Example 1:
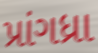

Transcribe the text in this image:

પ્રાંગધ્રા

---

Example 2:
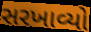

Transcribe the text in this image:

સરખાવ્યો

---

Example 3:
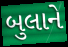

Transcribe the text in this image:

બુલાને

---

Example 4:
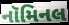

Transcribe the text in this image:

નૉમિનલ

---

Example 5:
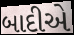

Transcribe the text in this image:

બાદીએ